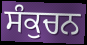
ਸੰਕੁਚਨ